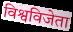
विश्वविजेता